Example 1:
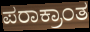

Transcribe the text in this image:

ಪರಾಕ್ರಾಂತ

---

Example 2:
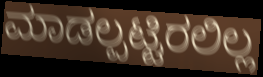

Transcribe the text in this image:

ಮಾಡಲ್ಪಟ್ಟಿರಲಿಲ್ಲ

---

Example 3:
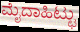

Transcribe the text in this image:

ಮೈದಾಹಿಟ್ಟು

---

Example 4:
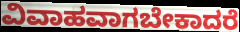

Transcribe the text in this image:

ವಿವಾಹವಾಗಬೇಕಾದರೆ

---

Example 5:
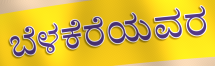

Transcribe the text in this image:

ಬೆಳಕೆರೆಯವರ